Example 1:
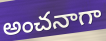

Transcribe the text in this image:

అంచనాగా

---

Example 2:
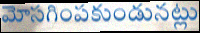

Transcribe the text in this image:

మోసగింపకుండునట్లు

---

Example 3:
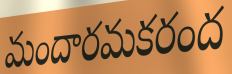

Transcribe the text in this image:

మందారమకరంద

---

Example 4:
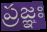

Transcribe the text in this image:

ప్రజ్ఞః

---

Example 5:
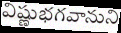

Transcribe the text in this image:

విష్ణుభగవానుని